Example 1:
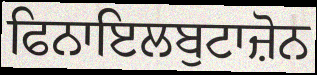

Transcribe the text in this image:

ਫਿਨਾਇਲਬੁਟਾਜ਼ੋਨ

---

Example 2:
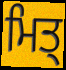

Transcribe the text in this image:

ਮਿਤ੍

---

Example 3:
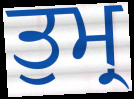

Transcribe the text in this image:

ਤੁਮ੍ਰ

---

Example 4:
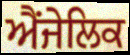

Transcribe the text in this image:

ਐਂਜੇਲਿਕ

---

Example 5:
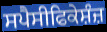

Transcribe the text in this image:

ਸਪੈਸੀਫਿਕੇਸ਼ੰਜ਼